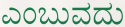
ಎಂಬುವದು